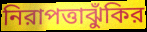
নিরাপত্তাঝুঁকির